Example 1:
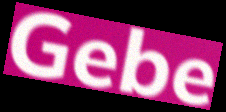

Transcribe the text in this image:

Gebe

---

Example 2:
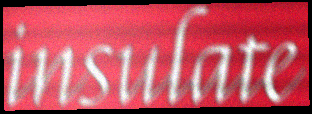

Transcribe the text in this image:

insulate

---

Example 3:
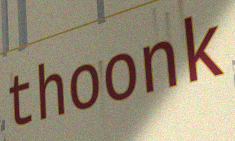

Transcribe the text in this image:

thoonk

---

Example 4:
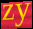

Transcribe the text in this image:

zy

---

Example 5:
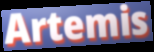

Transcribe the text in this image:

Artemis